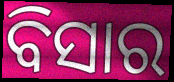
ବିସାର